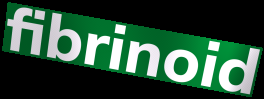
fibrinoid